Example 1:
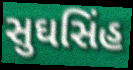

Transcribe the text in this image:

સુઘસિંહ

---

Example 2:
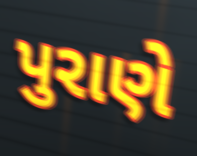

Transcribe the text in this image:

પુરાણે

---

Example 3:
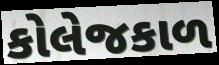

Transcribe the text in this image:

કોલેજકાળ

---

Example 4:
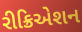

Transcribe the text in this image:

રીક્રિએશન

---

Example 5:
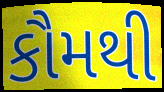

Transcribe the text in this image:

કૌમથી